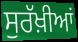
ਸੁਰੱਖ਼ੀਆਂ